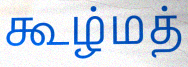
கூழ்மத்